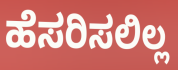
ಹೆಸರಿಸಲಿಲ್ಲ